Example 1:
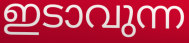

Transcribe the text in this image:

ഇടാവുന്ന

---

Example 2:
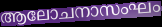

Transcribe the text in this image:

ആലോചനാസംഘം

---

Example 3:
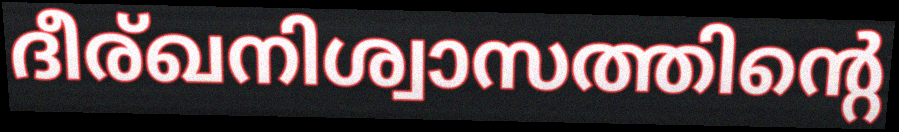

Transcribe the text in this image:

ദീര്ഖനിശ്വാസത്തിന്റെ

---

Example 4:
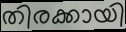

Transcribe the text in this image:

തിരക്കായി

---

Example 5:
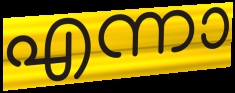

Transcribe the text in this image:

എന്നാ